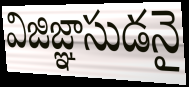
విజిజ్ఞాసుడనై